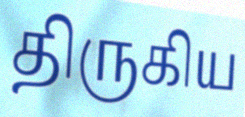
திருகிய